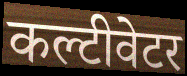
कल्टीवेटर